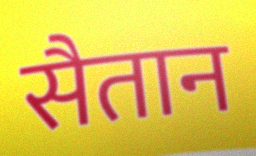
सैतान